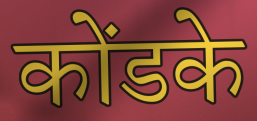
कोंडके